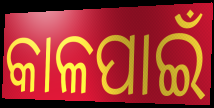
କାଳପାଇଁ